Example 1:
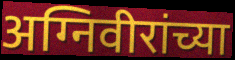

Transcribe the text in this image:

अग्निवीरांच्या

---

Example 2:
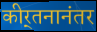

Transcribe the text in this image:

कीर्तनानंतर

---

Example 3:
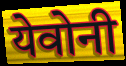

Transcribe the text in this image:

येवोनी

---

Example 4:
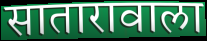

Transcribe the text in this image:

सातारावाला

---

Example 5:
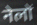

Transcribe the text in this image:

नेलों